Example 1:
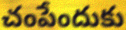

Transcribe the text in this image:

చంపేందుకు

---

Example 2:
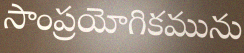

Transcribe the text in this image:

సాంప్రయోగికమును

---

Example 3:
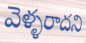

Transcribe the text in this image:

వెళ్ళరాదని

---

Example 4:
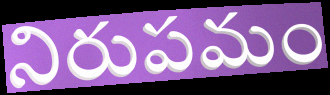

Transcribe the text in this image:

నిరుపమం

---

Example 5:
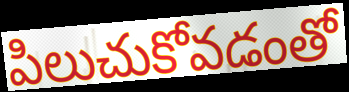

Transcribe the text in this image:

పిలుచుకోవడంతో